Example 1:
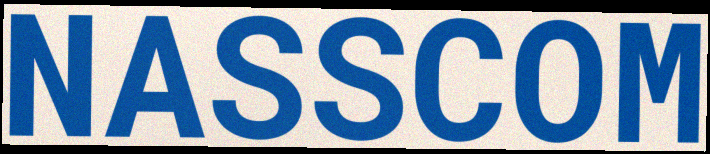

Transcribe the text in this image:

NASSCOM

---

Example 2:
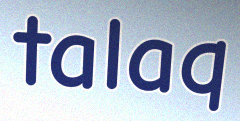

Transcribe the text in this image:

talaq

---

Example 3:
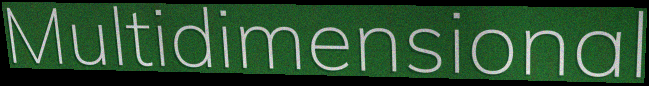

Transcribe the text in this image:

Multidimensional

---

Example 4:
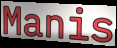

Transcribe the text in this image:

Manis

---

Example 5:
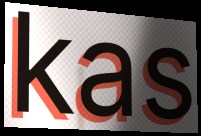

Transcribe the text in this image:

kas